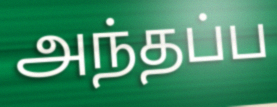
அந்தப்ப